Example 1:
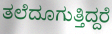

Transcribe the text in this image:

ತಲೆದೂಗುತ್ತಿದ್ದರೆ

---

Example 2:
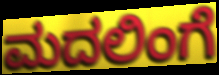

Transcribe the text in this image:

ಮದಲಿಂಗೆ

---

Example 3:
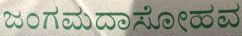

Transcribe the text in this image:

ಜಂಗಮದಾಸೋಹವ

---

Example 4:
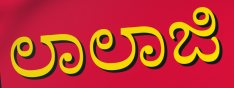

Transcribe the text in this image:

ಲಾಲಾಜಿ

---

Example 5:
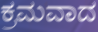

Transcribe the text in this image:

ಕ್ರಮವಾದ